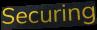
Securing